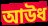
আউধ